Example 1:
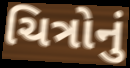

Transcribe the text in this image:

ચિત્રોનું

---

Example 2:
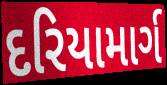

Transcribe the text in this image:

દરિયામાર્ગ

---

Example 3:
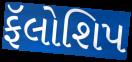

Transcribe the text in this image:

ફૅલોશિપ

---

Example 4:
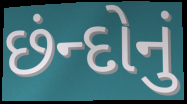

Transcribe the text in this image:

છંન્દોનું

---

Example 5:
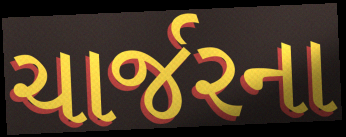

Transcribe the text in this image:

ચાર્જરના